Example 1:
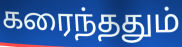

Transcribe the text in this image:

கரைந்ததும்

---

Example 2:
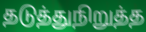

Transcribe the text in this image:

தடுத்துநிறுத்த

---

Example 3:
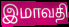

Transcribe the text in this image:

இமாவதி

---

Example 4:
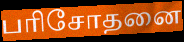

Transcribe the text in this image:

பரிசோதனை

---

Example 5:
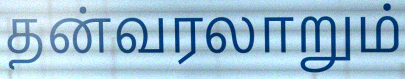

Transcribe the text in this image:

தன்வரலாறும்